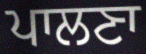
ਪਾਲਣਾ